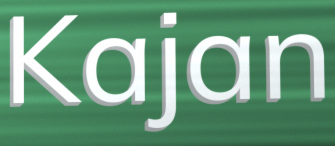
Kajan